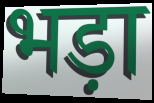
भड़ा